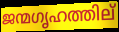
ജന്മഗൃഹത്തില്